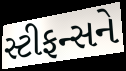
સ્ટીફન્સને